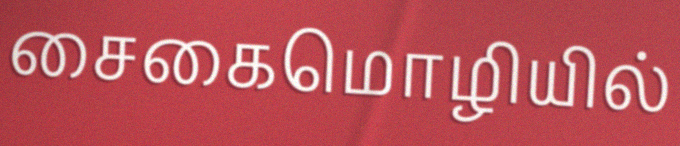
சைகைமொழியில்